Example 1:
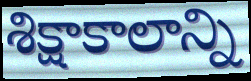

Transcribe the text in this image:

శిక్షాకాలాన్ని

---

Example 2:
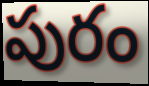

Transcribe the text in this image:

పురం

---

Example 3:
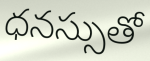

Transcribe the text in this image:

ధనస్సుతో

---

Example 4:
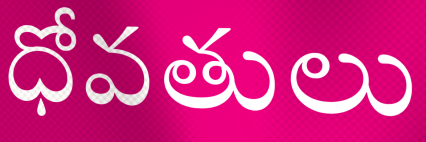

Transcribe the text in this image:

ధోవతులు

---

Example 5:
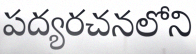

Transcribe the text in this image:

పద్యరచనలోని